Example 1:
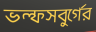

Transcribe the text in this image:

ভল্ফসবুর্গের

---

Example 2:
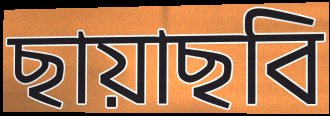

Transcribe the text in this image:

ছায়াছবি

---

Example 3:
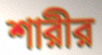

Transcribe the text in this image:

শারীর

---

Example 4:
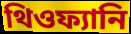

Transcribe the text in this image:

থিওফ্যানি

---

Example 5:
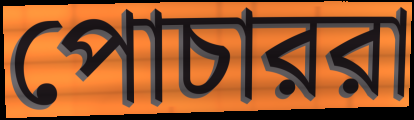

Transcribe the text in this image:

পোচাররা